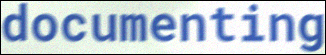
documenting